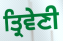
ਤ੍ਰਿਵੇਣੀ